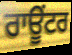
ਰਾਊਂਟਰ